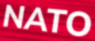
NATO